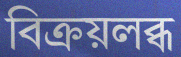
বিক্রয়লব্ধ